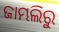
ଜାମ୍ଭଲିରୁ